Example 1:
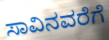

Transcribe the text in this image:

ಸಾವಿನವರೆಗೆ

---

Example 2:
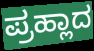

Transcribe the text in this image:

ಪ್ರಹ್ಲಾದ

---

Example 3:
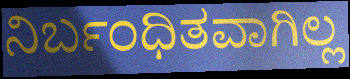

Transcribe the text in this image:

ನಿರ್ಬಂಧಿತವಾಗಿಲ್ಲ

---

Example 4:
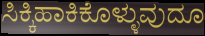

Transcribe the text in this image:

ಸಿಕ್ಕಿಹಾಕಿಕೊಳ್ಳುವುದೂ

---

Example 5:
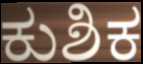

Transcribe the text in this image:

ಕುಶಿಕ